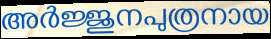
അർജ്ജുനപുത്രനായ